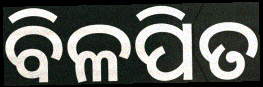
ବିଳପିତ